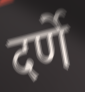
दर्णे